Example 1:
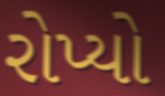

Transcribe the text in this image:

રોપ્યો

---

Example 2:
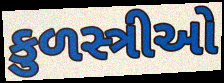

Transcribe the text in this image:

કુળસ્ત્રીઓ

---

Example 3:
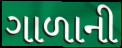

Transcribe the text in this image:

ગાળાની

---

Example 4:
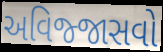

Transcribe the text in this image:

અવિજ્જાસવો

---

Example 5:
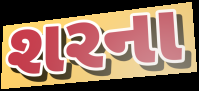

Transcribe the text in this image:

શરના